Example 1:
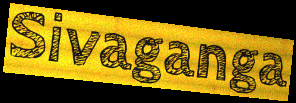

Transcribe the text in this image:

Sivaganga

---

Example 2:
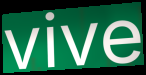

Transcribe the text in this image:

vive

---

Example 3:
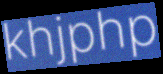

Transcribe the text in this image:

khjphp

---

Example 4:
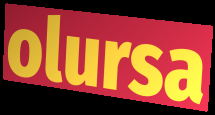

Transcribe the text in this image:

olursa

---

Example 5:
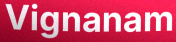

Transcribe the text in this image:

Vignanam